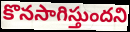
కొనసాగిస్తుందని